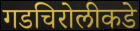
गडचिरोलीकडे